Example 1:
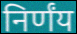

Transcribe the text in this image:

निर्णंय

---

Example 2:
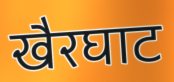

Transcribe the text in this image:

खैरघाट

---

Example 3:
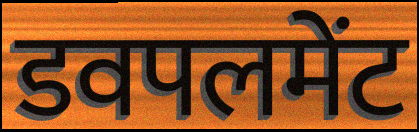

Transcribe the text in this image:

डवपलमेंट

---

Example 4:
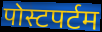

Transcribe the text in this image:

पोस्टपर्टम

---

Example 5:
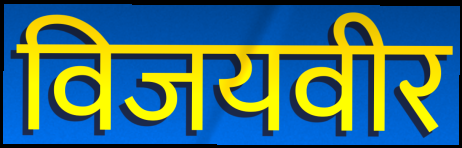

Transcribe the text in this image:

विजयवीर